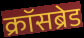
क्रॉसब्रेड